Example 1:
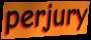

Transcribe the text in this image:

perjury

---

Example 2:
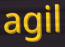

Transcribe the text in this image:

agil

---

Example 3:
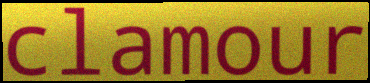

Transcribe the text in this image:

clamour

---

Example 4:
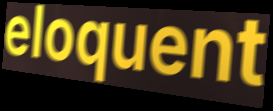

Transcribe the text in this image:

eloquent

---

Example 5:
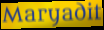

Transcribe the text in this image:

Maryadit